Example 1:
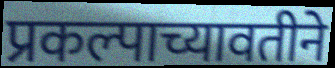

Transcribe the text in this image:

प्रकल्पाच्यावतीने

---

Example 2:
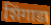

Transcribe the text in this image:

शिंगाडा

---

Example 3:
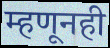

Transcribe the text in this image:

म्‍हणूनही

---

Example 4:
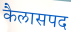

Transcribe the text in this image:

कैलासपद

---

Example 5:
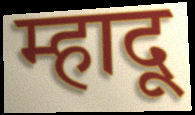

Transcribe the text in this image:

म्हादू